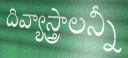
దివ్యాస్త్రాలన్నీ